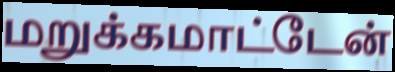
மறுக்கமாட்டேன்